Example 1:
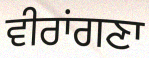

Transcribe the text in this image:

ਵੀਰਾਂਗਣਾ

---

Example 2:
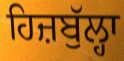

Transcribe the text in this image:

ਹਿਜ਼ਬੁੱਲ੍ਹਾ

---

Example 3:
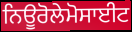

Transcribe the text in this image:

ਨਿਊਰੋਲੇਮੋਸਾਈਟ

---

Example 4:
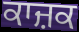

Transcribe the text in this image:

ਕਾਜ਼ਕ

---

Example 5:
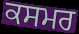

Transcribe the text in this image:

ਕਸਮਰ